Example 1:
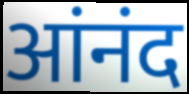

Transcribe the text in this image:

आंनंद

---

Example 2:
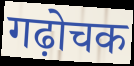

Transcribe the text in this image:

गढ़ोचक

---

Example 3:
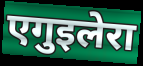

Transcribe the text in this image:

एगुइलेरा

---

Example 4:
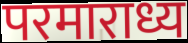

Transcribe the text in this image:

परमाराध्य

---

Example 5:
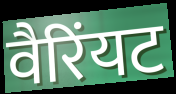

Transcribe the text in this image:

वैरिंयट